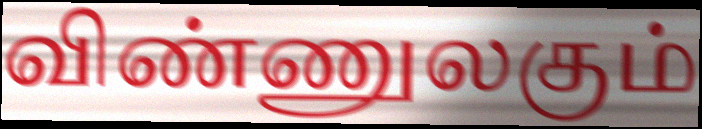
விண்ணுலகும்